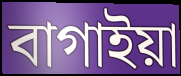
বাগাইয়া